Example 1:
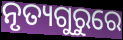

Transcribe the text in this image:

ନୃତ୍ୟଗୁରୁରେ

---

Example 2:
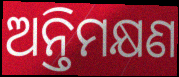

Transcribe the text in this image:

ଅନ୍ତିମକ୍ଷଣ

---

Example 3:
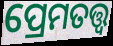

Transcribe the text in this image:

ପ୍ରେମତତ୍ତ୍ୱ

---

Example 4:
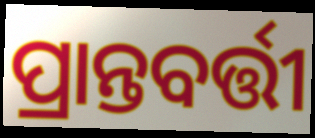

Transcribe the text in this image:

ପ୍ରାନ୍ତବର୍ତ୍ତୀ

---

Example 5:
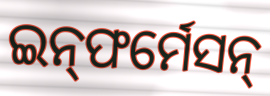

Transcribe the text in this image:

ଇନ୍‍ଫର୍ମେସନ୍